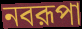
নবরূপা